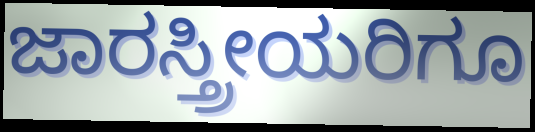
ಜಾರಸ್ತ್ರೀಯರಿಗೂ